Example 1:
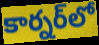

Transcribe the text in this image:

కార్నర్‌లో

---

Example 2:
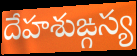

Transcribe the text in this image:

దేహశుఙ్గస్య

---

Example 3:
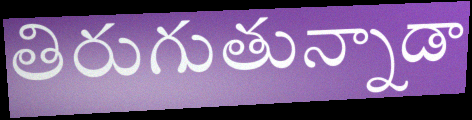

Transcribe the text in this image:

తిరుగుతున్నాడా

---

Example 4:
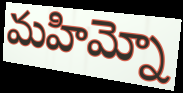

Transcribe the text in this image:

మహిమ్నో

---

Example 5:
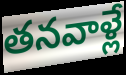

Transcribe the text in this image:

తనవాళ్లే